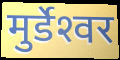
मुर्डेश्वर